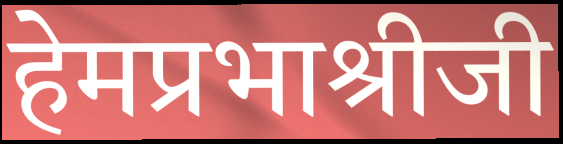
हेमप्रभाश्रीजी